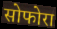
सोफोरा